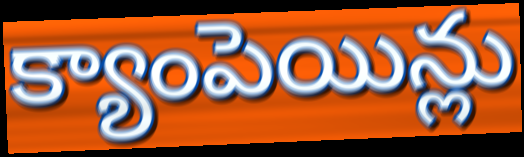
క్యాంపెయిన్లు